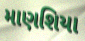
માણશિયા